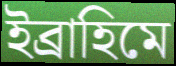
ইব্ৰাহিমে